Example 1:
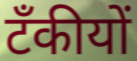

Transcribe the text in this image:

टँकीयों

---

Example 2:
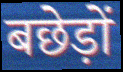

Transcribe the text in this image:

बछेड़ों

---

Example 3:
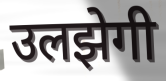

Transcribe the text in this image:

उलझेगी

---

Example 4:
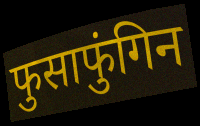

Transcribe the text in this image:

फुसाफुंगिन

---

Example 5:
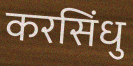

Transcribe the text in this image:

करसिंधु